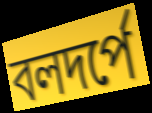
বলদর্পে